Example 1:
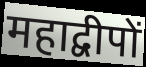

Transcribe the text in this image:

महाद्वीपों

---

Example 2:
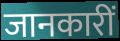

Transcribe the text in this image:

जानकारीं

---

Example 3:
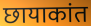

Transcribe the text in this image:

छायाकांत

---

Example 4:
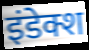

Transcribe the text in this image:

इंडेक्श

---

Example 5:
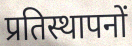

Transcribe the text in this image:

प्रतिस्थापनों